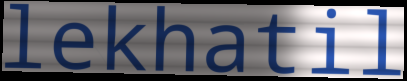
lekhatil